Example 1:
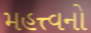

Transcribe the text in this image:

મહત્ત્વનો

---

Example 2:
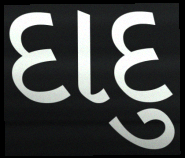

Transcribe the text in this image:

દાદુ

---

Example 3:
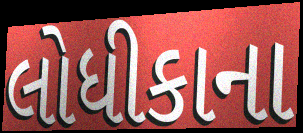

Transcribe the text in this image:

લોધીકાના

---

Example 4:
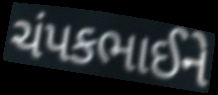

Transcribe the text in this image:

ચંપકભાઈને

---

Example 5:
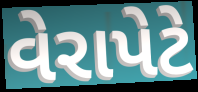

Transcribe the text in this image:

વેરાપેટે